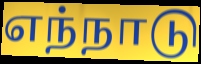
எந்நாடு